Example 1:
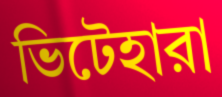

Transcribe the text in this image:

ভিটেহারা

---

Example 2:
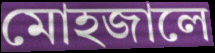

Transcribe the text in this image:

মোহজালে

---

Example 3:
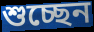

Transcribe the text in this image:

শুচ্ছেন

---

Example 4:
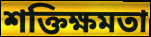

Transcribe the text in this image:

শক্তিক্ষমতা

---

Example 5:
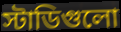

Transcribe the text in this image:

স্টাডিগুলো